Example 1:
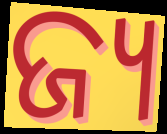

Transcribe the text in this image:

ଜ୍ୟ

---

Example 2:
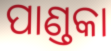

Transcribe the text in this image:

ପାଣ୍ଡକା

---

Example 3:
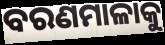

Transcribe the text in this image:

ବରଣମାଳାକୁ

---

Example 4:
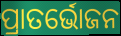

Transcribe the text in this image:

ପ୍ରାତର୍ଭୋଜନ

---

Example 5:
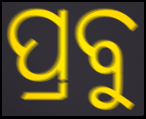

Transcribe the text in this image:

ପ୍ରବୁ